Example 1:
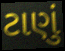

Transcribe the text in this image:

ટાણું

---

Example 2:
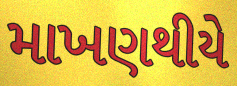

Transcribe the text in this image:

માખણથીયે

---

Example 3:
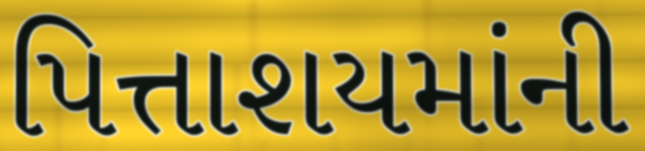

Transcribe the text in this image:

પિત્તાશયમાંની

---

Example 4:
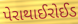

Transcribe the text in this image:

પેરાથાઈરોઈડ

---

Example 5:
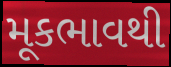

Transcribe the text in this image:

મૂકભાવથી